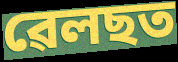
ৱেলছত